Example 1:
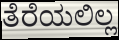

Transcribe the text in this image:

ತೆರೆಯಲಿಲ್ಲ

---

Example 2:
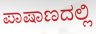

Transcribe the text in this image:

ಪಾಷಾಣದಲ್ಲಿ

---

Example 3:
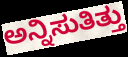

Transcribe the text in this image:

ಅನ್ನಿಸುತಿತ್ತು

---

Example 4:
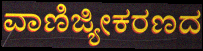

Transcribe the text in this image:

ವಾಣಿಜ್ಯೀಕರಣದ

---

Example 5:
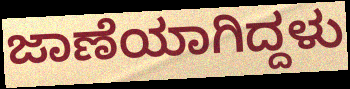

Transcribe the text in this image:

ಜಾಣೆಯಾಗಿದ್ದಳು